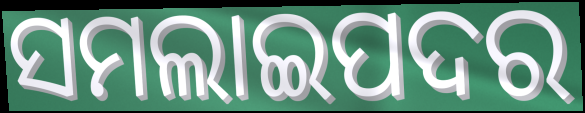
ସମଲାଇପଦର